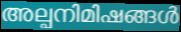
അല്പനിമിഷങ്ങൾ